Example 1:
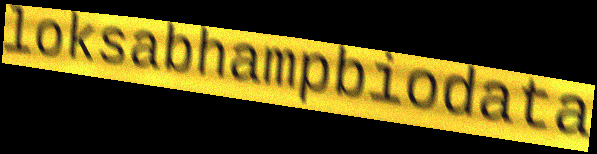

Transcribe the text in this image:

loksabhampbiodata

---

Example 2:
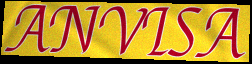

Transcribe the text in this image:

ANVISA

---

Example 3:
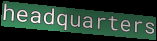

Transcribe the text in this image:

headquarters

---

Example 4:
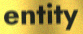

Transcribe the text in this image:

entity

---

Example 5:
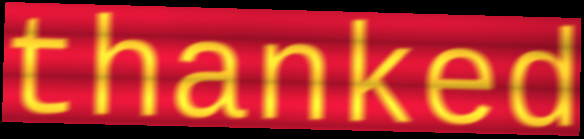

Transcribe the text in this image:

thanked